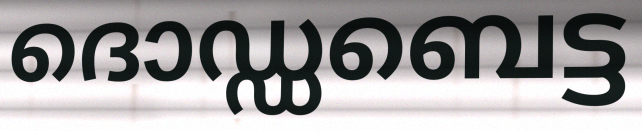
ദൊഡ്ഡബെട്ട